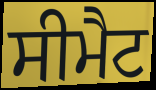
ਸੀਮੈਟ